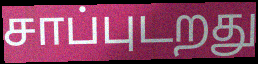
சாப்புடறது